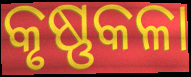
କୃଷ୍ଣକଳା